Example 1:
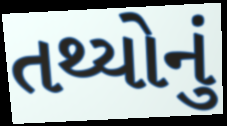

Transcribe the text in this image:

તથ્યોનું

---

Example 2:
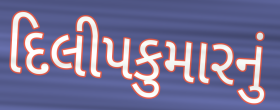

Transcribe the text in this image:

દિલીપકુમારનું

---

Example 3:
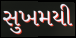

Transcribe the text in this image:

સુખમયી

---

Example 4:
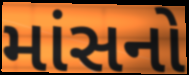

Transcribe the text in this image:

માંસનો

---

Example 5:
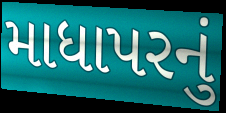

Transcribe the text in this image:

માધાપરનું